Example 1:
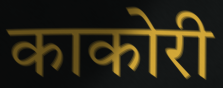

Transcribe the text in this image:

काकोरी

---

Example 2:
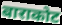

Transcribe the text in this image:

बाराकोट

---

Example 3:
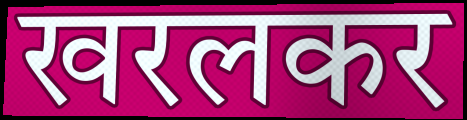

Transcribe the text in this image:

खरलकर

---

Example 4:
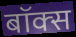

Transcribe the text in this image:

बॉक्‍स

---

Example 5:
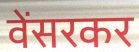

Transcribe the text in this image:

वेंसरकर